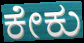
ಕೇಕು